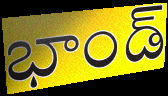
భాండ్